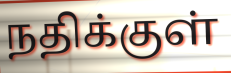
நதிக்குள்